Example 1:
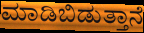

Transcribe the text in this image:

ಮಾಡಿಬಿಡುತ್ತಾನೆ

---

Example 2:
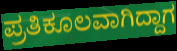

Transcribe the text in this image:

ಪ್ರತಿಕೂಲವಾಗಿದ್ದಾಗ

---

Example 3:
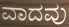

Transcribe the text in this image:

ವಾದವು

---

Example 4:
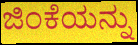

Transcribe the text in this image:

ಜಿಂಕೆಯನ್ನು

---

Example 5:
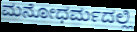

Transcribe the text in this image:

ಮನೋಧರ್ಮದಲ್ಲಿ